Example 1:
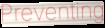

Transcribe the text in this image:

Preventing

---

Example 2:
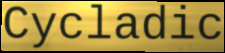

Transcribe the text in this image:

Cycladic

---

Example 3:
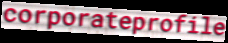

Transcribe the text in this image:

corporateprofile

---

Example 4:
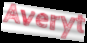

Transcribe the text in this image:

Averyt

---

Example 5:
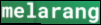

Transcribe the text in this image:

melarang